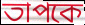
তাপকে